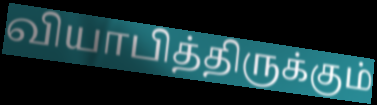
வியாபித்திருக்கும்